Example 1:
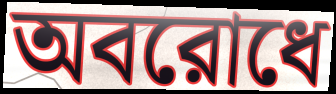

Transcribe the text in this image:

অবরোধে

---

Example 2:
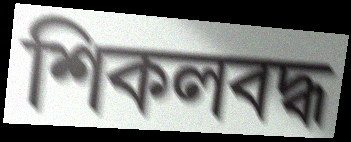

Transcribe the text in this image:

শিকলবদ্ধ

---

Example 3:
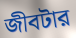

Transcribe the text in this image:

জীবটার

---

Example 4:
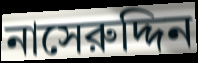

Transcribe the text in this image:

নাসেরুদ্দিন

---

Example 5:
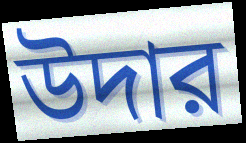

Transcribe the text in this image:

উদার